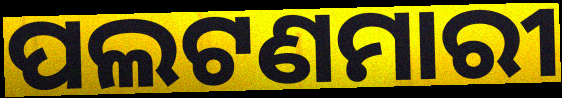
ପଲଟଣମାରୀ